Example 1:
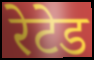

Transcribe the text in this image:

रेटेड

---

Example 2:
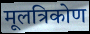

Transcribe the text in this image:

मूलत्रिकोण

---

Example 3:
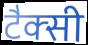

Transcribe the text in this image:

टैक्‍सी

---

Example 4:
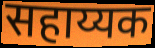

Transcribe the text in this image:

सहाय्यक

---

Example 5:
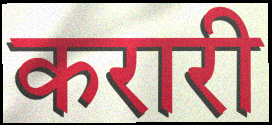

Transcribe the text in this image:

करारी